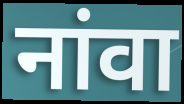
नांवा